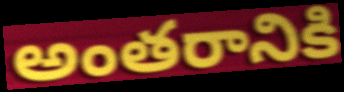
అంతరానికి